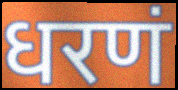
धरणं